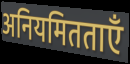
अनियमितताएँ